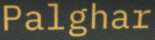
Palghar